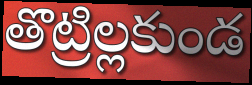
తొట్రిల్లకుండ